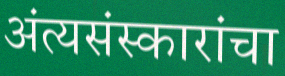
अंत्यसंस्कारांचा